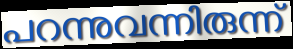
പറന്നുവന്നിരുന്ന്